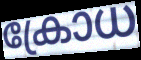
ക്രോധ